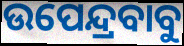
ଉପେନ୍ଦ୍ରବାବୁ